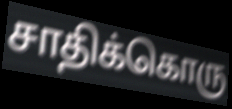
சாதிக்கொரு